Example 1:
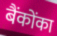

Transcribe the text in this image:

बैंकोंका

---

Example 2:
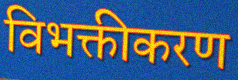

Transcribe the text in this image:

विभक्तीकरण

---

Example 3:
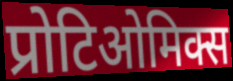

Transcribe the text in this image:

प्रोटिओमिक्स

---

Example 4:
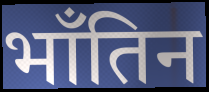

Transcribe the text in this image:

भाँतिन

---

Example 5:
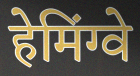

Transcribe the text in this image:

हेमिंग्वे